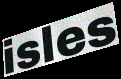
isles